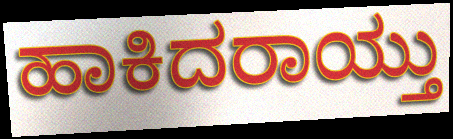
ಹಾಕಿದರಾಯ್ತು